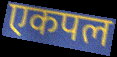
एकपल